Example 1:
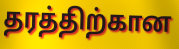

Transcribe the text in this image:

தரத்திற்கான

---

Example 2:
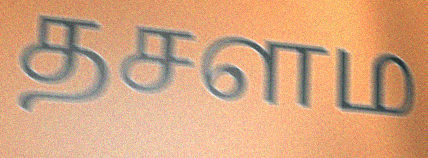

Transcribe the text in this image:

தசளம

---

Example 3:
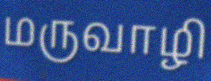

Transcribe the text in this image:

மருவாழி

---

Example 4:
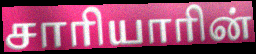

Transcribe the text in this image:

சாரியாரின்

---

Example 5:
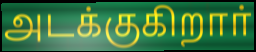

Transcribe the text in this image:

அடக்குகிறார்